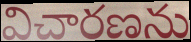
విచారణను